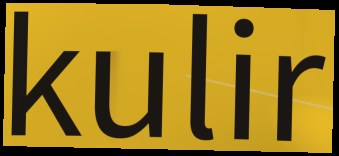
kulir